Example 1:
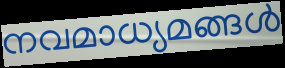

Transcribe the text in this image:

നവമാധ്യമങ്ങൾ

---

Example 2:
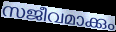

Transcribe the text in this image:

സജീവമാക്കും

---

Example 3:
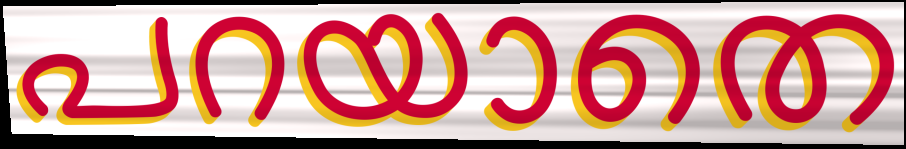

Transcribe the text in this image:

പറയാതെ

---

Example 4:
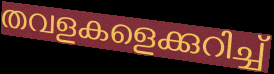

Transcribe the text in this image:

തവളകളെക്കുറിച്ച്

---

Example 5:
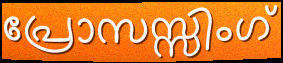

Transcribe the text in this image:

പ്രോസസ്സിംഗ്